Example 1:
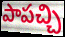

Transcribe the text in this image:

పాపచ్చి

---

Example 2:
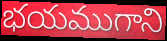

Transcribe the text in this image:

భయముగాని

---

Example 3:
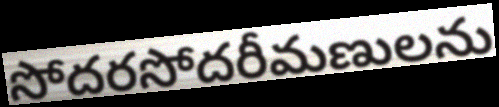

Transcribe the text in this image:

సోదరసోదరీమణులను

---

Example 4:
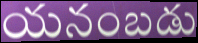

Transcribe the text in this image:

యనంబడు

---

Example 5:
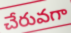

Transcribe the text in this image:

చేరువగా